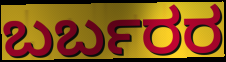
ಬರ್ಬರರ